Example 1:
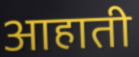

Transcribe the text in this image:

आहाती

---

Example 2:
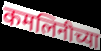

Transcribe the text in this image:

कमलिनीच्या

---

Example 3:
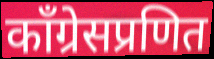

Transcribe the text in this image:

काँग्रेसप्रणित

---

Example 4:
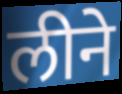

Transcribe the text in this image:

लीने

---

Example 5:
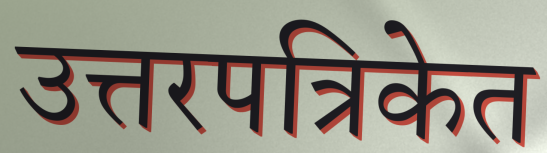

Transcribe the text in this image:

उत्तरपत्रिकेत